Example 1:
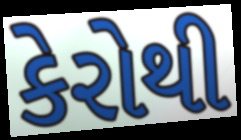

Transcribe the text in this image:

કેરોથી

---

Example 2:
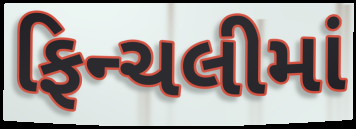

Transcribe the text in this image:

ફિન્ચલીમાં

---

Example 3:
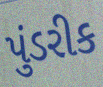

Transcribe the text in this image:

પુંડરીક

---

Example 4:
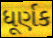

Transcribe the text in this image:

ધૂર્ણક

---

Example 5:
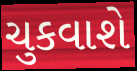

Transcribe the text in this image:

ચુકવાશે